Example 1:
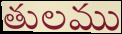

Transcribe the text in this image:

తులము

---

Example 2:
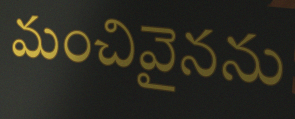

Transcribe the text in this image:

మంచివైనను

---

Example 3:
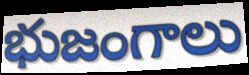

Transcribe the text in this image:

భుజంగాలు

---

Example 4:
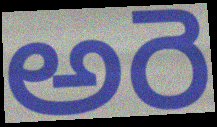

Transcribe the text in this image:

అరె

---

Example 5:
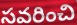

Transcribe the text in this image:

సవరించి